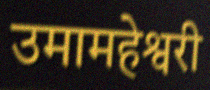
उमामहेश्वरी